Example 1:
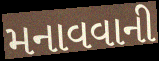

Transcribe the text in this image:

મનાવવાની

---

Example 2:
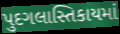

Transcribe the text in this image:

પુદગલાસ્તિકાયમાં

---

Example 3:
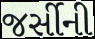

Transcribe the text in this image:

જર્સીની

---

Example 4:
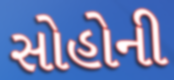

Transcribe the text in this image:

સોહોની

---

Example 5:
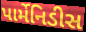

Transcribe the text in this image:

પાર્મેનિડીસ